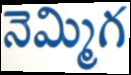
నెమ్మిగ